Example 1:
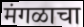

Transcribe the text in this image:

मंगळाचा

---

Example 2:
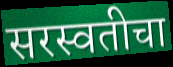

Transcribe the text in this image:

सरस्वतीचा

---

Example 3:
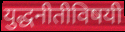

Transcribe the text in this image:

युद्धनीतीविषयी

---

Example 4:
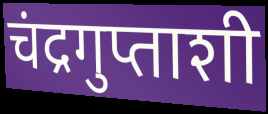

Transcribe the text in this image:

चंद्रगुप्ताशी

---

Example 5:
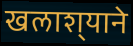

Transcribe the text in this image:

खलाश्याने